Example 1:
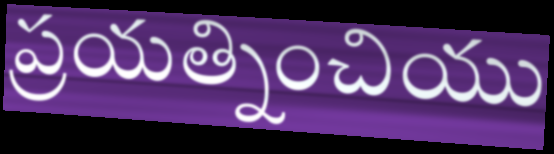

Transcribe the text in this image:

ప్రయత్నించియు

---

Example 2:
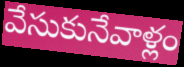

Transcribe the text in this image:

వేసుకునేవాళ్లం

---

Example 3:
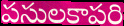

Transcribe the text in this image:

పసులకాపరి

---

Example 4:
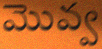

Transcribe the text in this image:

మొవ్వ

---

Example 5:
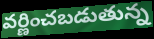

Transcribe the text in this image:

వర్ణించబడుతున్న